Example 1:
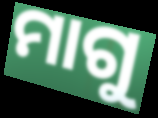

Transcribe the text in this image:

ମାଗୁ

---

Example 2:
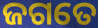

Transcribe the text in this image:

ଜଗତେ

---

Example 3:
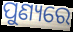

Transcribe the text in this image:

ପୁଣ୍ୟରେ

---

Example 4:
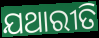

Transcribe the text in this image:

ଯଥାରୀତି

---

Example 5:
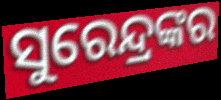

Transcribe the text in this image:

ସୁରେନ୍ଦ୍ରଙ୍କର